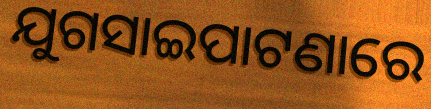
ଯୁଗସାଇପାଟଣାରେ